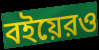
বইয়েরও